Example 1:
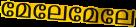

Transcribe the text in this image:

മേലേമേലേ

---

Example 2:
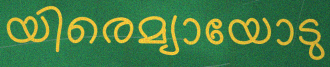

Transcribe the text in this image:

യിരെമ്യായോടു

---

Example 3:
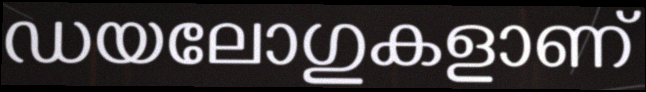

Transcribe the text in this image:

ഡയലോഗുകളാണ്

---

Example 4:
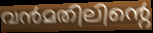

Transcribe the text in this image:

വൻമതിലിന്റെ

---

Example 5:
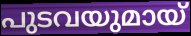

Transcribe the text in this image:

പുടവയുമായ്